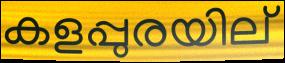
കളപ്പുരയില്